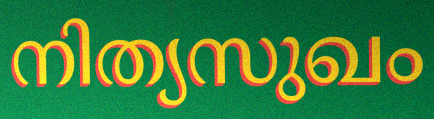
നിത്യസുഖം